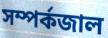
সম্পর্কজাল